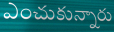
ఎంచుకున్నారు